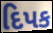
દિપક